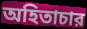
অহিতাচার